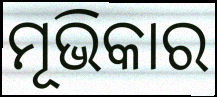
ମୂଭିକାର